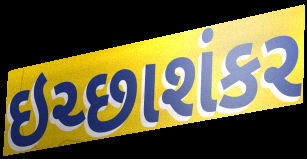
ઇચ્છાશંકર